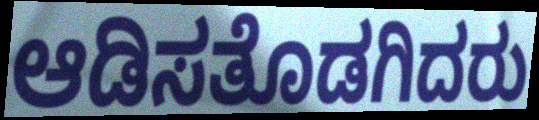
ಆಡಿಸತೊಡಗಿದರು